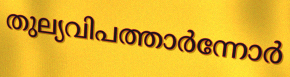
തുല്യവിപത്താർന്നോർ